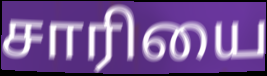
சாரியை